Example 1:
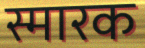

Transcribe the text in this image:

स्मारक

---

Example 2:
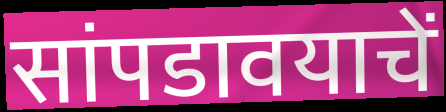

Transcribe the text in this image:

सांपडावयाचें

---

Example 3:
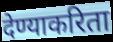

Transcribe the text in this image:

देण्याकरिता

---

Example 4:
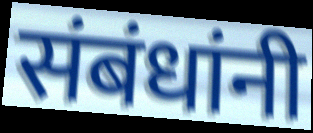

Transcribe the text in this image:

संबंधांनी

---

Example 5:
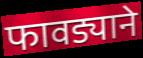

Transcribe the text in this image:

फावड्याने